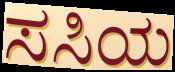
ಸಸಿಯ